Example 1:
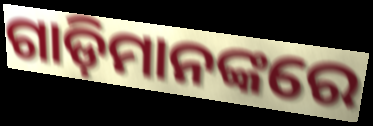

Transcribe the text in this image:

ଗାଡ଼ିମାନଙ୍କରେ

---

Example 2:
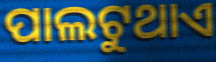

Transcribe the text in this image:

ପାଲଟୁଥାଏ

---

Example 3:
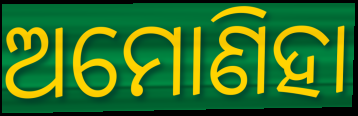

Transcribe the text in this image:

ଅମୋଣିହା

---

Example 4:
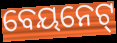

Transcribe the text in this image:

ବେୟନେଟ୍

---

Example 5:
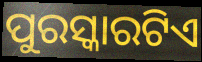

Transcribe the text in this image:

ପୁରସ୍କାରଟିଏ